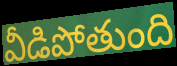
వీడిపోతుంది